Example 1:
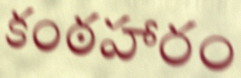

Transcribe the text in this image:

కంఠహారం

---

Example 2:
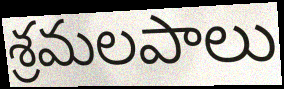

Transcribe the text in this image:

శ్రమలపాలు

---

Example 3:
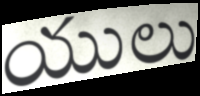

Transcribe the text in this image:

యులు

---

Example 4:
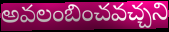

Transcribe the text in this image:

అవలంబించవచ్చని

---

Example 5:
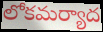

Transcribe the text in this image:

లోకమర్యాద